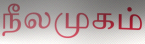
நீலமுகம்